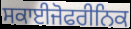
ਸਕਾਈਜੋਫਰੀਨਿਕ